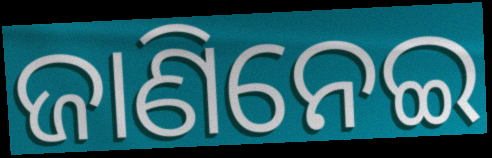
ଜାଣିନେଇ